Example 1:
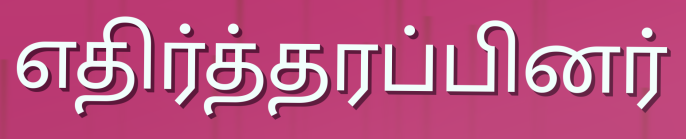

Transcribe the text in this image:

எதிர்த்தரப்பினர்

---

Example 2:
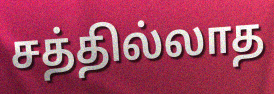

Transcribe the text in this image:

சத்தில்லாத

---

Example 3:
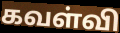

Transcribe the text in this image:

கவள்வி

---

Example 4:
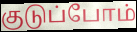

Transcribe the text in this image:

குடுப்போம்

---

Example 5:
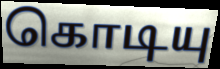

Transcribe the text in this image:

கொடியு